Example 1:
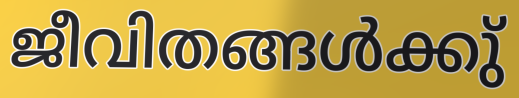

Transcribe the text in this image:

ജീവിതങ്ങൾക്കു്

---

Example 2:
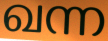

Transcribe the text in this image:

ഖന്ന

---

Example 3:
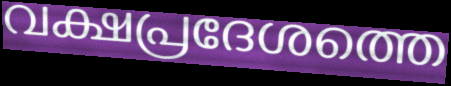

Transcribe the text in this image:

വക്ഷപ്രദേശത്തെ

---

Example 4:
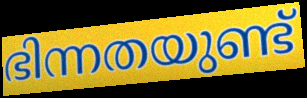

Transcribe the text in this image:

ഭിന്നതയുണ്ട്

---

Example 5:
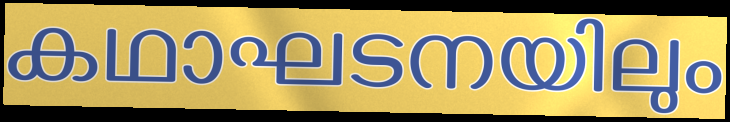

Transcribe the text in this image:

കഥാഘടനയിലും